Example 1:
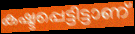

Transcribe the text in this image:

കഷ്ടപ്പെട്ടിട്ടാണ്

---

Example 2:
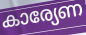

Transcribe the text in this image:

കാര്യേണ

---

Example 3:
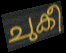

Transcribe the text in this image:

ചുകീ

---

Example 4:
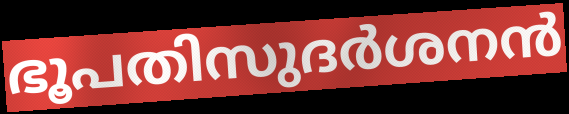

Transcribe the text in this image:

ഭൂപതിസുദർശനൻ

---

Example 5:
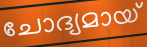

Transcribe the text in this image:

ചോദ്യമായ്